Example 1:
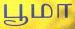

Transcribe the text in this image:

பூமா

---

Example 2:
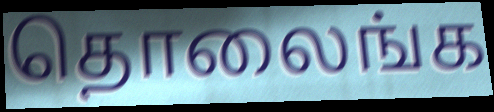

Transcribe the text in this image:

தொலைங்க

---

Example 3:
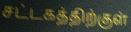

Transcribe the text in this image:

சட்டகத்திற்குள்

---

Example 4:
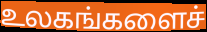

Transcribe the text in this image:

உலகங்களைச்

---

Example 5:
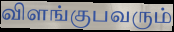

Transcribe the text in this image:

விளங்குபவரும்